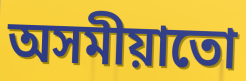
অসমীয়াতো